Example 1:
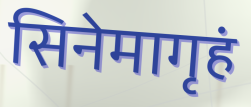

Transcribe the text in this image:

सिनेमागृहं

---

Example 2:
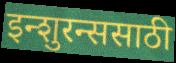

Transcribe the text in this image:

इन्शुरन्ससाठी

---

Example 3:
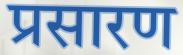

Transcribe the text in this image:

प्रसारण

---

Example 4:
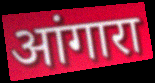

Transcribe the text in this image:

आंगारा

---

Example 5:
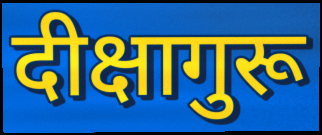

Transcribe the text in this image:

दीक्षागुरू